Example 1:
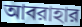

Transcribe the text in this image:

আবরাহার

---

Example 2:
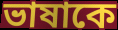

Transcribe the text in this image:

ভাষাকে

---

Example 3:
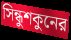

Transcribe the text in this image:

সিন্ধুশকুনের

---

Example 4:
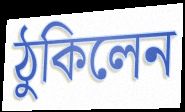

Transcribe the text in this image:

ঠুকিলেন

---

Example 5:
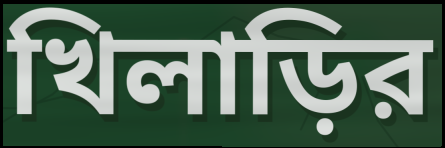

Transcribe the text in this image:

খিলাড়ির